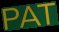
PAT